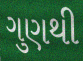
ગુણથી